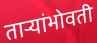
ताऱ्यांभोवती